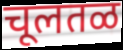
चूलतळ